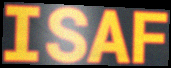
ISAF